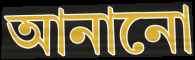
আনানো